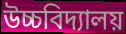
উচ্চবিদ্যালয়